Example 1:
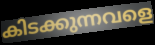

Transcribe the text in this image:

കിടക്കുന്നവളെ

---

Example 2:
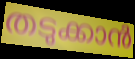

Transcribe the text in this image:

തടുക്കാൻ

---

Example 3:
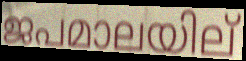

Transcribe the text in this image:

ജപമാലയില്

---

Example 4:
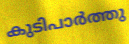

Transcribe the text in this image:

കുടിപാർത്തു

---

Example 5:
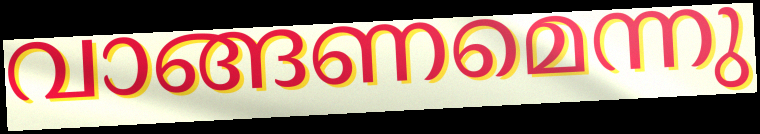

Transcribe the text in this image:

വാങ്ങണമെന്നു